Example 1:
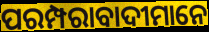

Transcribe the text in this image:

ପରମ୍ପରାବାଦୀମାନେ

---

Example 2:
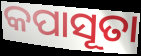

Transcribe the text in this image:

କପାସୂତା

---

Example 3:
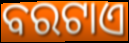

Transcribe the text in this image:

ବରଟାଏ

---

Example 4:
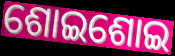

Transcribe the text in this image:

ଶୋଇଶୋଇ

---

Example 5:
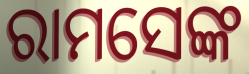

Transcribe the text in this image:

ରାମସେଙ୍କ